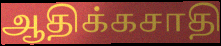
ஆதிக்கசாதி